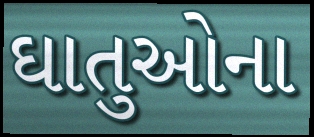
ઘાતુઓના